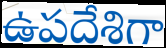
ఉపదేశిగా